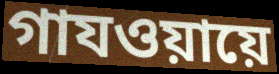
গাযওয়ায়ে